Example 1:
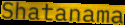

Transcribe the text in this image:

Shatanama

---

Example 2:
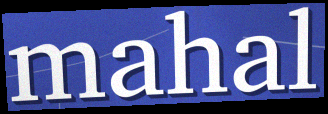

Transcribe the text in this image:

mahal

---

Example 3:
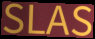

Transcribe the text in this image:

SLAS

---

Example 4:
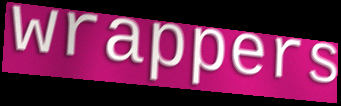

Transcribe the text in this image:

wrappers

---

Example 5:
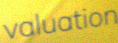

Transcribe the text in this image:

valuation